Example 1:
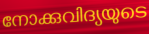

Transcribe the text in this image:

നോക്കുവിദ്യയുടെ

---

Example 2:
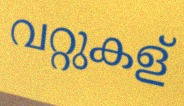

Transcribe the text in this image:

വറ്റുകള്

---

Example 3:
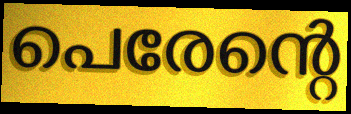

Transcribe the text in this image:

പെരേന്റെ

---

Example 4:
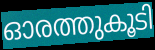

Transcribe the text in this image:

ഓരത്തുകൂടി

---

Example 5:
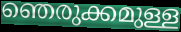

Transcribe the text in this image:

ഞെരുക്കമുള്ള